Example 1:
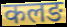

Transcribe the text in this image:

कलङ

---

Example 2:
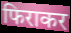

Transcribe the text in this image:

फिराकर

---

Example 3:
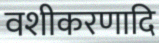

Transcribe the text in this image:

वशीकरणादि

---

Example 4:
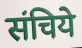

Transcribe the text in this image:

संचिये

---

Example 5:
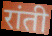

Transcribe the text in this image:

रांती